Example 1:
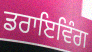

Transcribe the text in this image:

ਡਰਾਇਵਿੰਗ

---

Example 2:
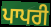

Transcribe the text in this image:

ਪਾਪਰੀ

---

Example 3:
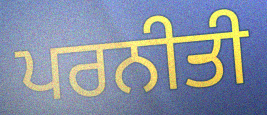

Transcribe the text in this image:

ਪਰਨੀਤੀ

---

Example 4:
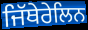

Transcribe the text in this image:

ਜਿੱਥੇਰੇਲਿਨ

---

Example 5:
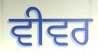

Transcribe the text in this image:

ਵੀਵਰ